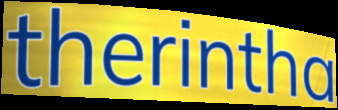
therintha